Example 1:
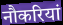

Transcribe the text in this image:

नौकरियां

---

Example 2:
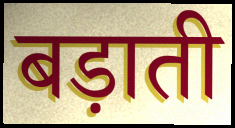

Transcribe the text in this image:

बड़ाती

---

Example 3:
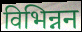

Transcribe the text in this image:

विभिन्नन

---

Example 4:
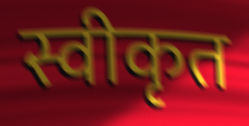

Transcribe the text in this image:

स्वीकृत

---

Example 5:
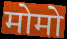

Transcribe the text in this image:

मोमो